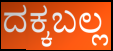
ದಕ್ಕಬಲ್ಲ